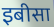
इबीसा